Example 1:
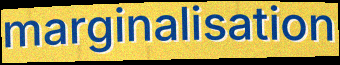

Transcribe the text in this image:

marginalisation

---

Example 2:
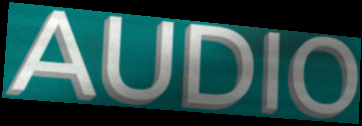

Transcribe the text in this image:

AUDIO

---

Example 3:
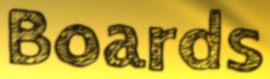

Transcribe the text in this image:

Boards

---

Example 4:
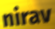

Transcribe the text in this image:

nirav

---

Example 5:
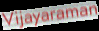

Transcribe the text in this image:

Vijayaraman